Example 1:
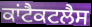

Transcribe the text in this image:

ਕਾਂਟੈਕਟਲੈਸ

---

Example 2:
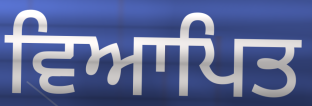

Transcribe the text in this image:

ਵਿਆਪਿਤ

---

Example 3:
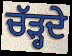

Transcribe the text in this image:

ਚੱੜ੍ਹਦੇ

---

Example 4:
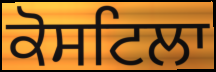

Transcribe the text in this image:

ਕੋਸਟਿਲਾ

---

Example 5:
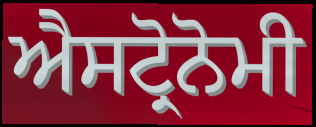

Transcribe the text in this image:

ਐਸਟ੍ਰੋਨੋਮੀ